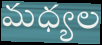
మధ్యల